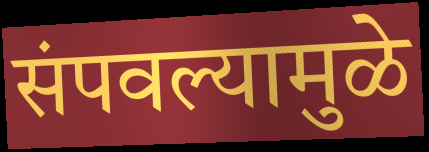
संपवल्यामुळे